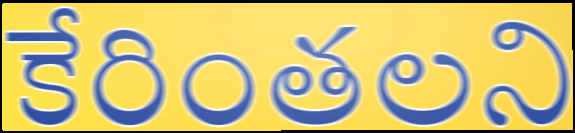
కేరింతలని